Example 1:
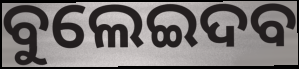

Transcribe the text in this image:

ବୁଲେଇଦବ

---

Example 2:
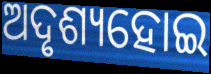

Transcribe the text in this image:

ଅଦୃଶ୍ୟହୋଇ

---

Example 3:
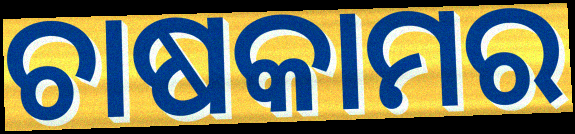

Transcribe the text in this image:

ଚାଷକାମର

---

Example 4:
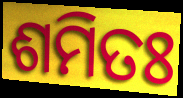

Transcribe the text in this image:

ଶମିତଃ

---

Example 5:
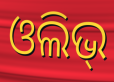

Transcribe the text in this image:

ଓଲିଭ୍